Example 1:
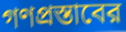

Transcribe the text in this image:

গণপ্রস্তাবের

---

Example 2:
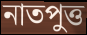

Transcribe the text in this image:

নাতপুত্ত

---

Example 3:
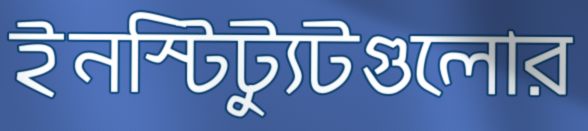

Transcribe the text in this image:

ইনস্টিট্যুটগুলোর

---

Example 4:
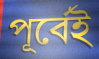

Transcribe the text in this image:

পূর্বেই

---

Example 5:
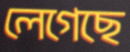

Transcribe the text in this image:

লেগেছে